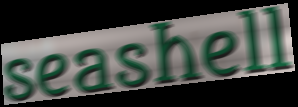
seashell